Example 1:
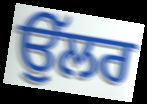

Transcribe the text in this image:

ਉੱਲਰ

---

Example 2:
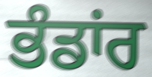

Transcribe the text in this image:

ਭੰਡਾਂਰ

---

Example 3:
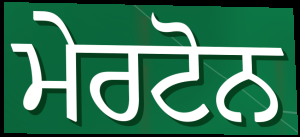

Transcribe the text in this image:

ਮੇਰਟੋਨ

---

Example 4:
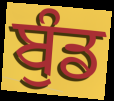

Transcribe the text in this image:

ਬੁੰਡ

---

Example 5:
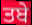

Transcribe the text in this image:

ਤਬੇ